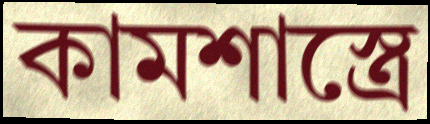
কামশাস্ত্রে